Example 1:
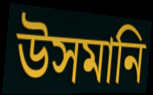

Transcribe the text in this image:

উসমানি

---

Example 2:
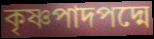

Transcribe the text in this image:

কৃষ্ণপাদপদ্মে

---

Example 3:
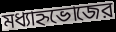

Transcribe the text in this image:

মধ্যাহ্নভোজের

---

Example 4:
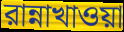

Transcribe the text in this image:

রান্নাখাওয়া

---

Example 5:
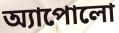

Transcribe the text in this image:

অ্যাপোলো